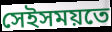
সেইসময়তে